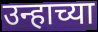
उन्हाच्या